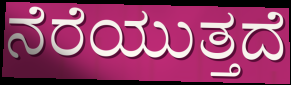
ನೆರೆಯುತ್ತದೆ